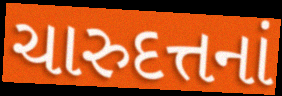
ચારુદત્તનાં